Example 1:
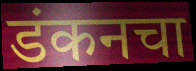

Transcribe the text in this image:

डंकनचा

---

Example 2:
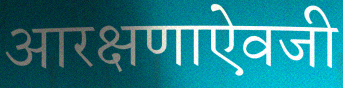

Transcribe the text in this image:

आरक्षणाऐवजी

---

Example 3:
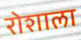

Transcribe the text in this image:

रोशाला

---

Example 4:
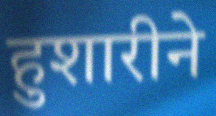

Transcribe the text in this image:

हुशारीने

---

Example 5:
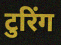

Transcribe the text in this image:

टुरिंग